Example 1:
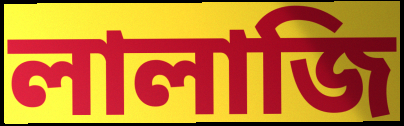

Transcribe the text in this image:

লালাজি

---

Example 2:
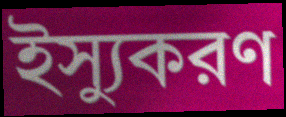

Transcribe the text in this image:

ইস্যুকরণ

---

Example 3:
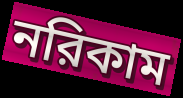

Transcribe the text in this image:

নরিকাম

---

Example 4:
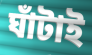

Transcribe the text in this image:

ঘাঁটাই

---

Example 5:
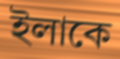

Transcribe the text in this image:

ইলাকে